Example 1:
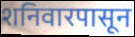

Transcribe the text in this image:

शनिवारपासून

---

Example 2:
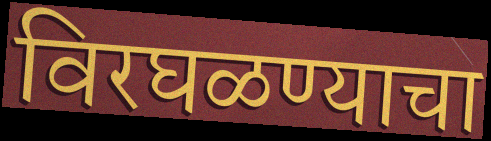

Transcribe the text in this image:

विरघळण्याचा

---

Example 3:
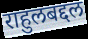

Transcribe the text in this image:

राहुलबद्दल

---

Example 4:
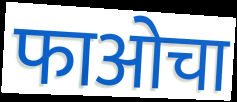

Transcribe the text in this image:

फाओचा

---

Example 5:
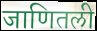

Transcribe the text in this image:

जाणितली